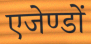
एजेण्डों